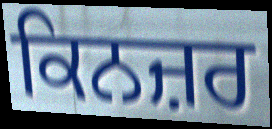
ਕਿਨਜ਼ਰ